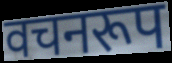
वचनरूप